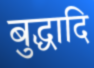
बुद्धादि